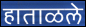
हाताळले